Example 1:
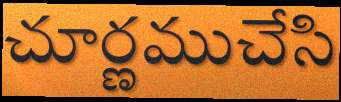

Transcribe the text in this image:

చూర్ణముచేసి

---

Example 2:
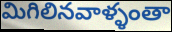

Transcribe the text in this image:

మిగిలినవాళ్ళంతా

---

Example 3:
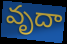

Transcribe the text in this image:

వృదా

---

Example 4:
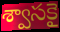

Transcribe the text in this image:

శ్వాసకై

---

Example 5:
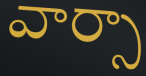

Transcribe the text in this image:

వార్సా